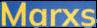
Marxs